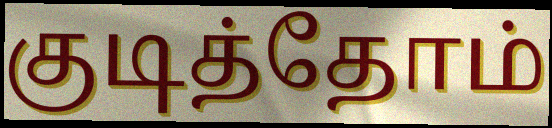
குடித்தோம்